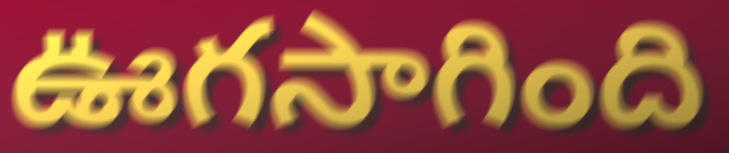
ఊగసాగింది